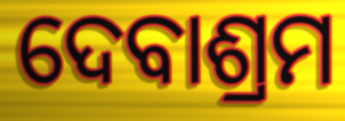
ଦେବାଶ୍ରମ